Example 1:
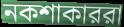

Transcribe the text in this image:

নকশাকাররা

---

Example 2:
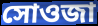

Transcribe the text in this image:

সোওজা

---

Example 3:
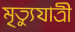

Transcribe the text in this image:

মৃত্যুযাত্রী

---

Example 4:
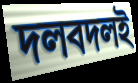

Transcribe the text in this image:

দলবদলই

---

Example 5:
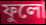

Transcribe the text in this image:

ফুলো